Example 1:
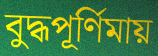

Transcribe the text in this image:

বুদ্ধপূর্ণিমায়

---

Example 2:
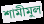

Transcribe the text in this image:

শামীমুল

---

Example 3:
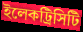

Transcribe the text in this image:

ইলেকট্রিসিটি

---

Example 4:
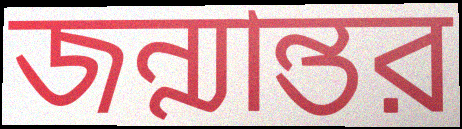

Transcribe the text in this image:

জন্মান্তর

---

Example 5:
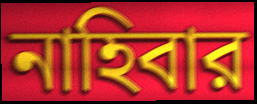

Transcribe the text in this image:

নাহিবার